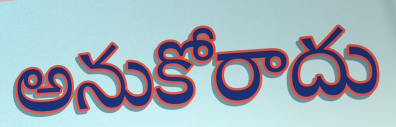
అనుకోరాదు